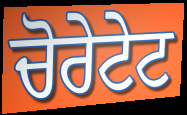
ਚੋਰੇਟੇਟ